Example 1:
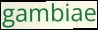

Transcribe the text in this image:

gambiae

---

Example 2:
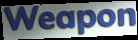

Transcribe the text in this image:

Weapon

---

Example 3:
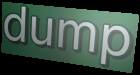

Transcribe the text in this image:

dump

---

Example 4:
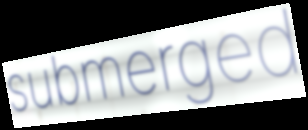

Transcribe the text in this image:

submerged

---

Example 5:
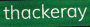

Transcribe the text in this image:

thackeray